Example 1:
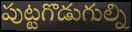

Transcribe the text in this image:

పుట్టగొడుగుల్ని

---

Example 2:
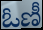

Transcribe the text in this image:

ఓణీ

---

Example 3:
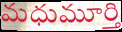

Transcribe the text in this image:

మధుమూర్తి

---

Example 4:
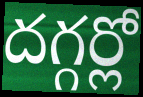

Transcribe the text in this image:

దగ్గర్లో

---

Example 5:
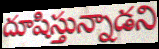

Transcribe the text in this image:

దూషిస్తున్నాడని